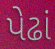
પેઢાં